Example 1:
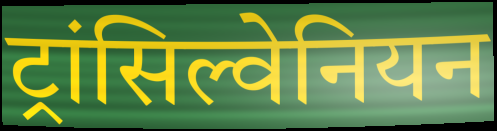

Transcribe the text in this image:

ट्रांसिल्वेनियन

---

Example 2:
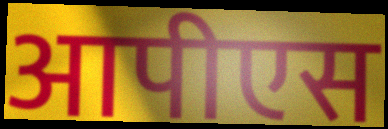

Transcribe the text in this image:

आपीएस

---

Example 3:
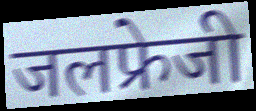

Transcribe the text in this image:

जलफ्रेजी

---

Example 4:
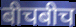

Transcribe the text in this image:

बीचबीच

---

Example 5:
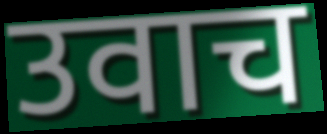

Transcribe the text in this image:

उवाच